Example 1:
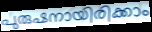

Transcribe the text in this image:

പുരുഷനായിരിക്കാം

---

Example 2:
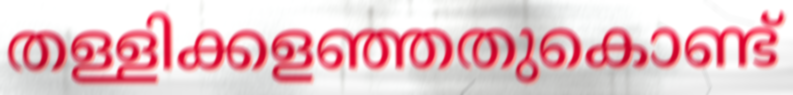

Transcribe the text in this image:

തള്ളിക്കളഞ്ഞതുകൊണ്ട്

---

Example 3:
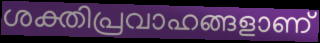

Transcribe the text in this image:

ശക്തിപ്രവാഹങ്ങളാണ്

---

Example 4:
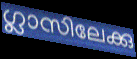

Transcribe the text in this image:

ഗ്ലാസിലേക്കു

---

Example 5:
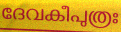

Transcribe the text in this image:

ദേവകീപുത്രഃ